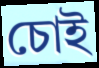
চোই